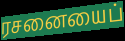
ரசனையைப்